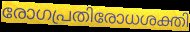
രോഗപ്രതിരോധശക്തി